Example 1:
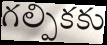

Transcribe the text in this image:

గల్పికకు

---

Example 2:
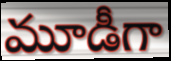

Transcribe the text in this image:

మూడీగా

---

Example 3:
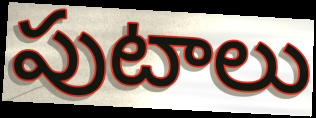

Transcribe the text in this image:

పుటాలు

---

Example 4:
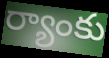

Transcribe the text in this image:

ర్యాంకు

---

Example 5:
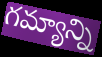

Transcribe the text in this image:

గమ్యాన్ని